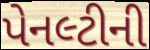
પેનલ્ટીની